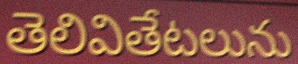
తెలివితేటలును